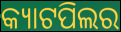
କ୍ୟାଟପିଲର